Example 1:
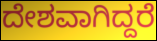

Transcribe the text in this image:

ದೇಶವಾಗಿದ್ದರೆ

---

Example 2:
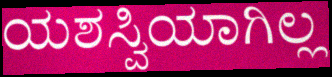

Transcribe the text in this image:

ಯಶಸ್ವಿಯಾಗಿಲ್ಲ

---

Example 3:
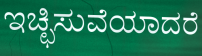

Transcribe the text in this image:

ಇಚ್ಛಿಸುವೆಯಾದರೆ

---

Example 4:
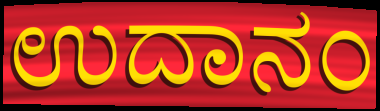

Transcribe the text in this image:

ಉದಾನಂ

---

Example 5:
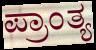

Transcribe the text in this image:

ಪ್ರಾಂತ್ಯ